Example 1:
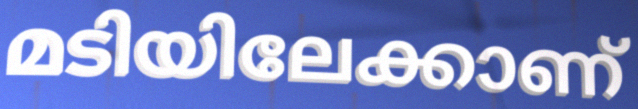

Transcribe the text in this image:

മടിയിലേക്കാണ്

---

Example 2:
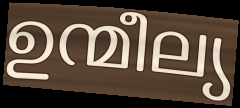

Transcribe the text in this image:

ഉന്മീല്യ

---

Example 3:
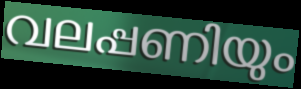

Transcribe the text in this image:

വലപ്പണിയും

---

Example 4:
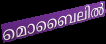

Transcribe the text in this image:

മൊബൈലിൽ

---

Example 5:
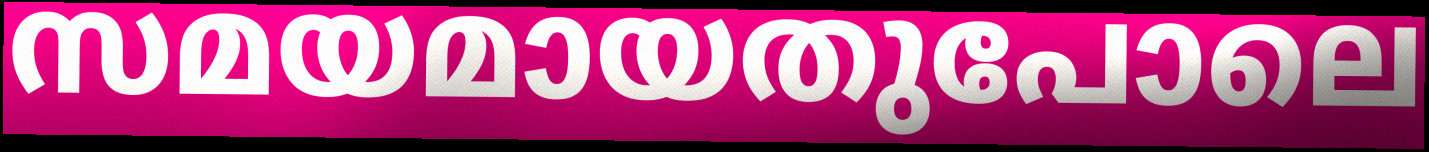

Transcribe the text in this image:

സമയമായതുപോലെ